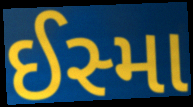
ઈસ્મા